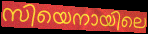
സിയെനായിലെ